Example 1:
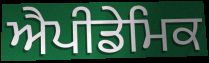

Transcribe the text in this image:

ਐਪੀਡੇਮਿਕ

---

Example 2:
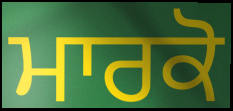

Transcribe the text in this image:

ਮਾਰਕੋ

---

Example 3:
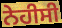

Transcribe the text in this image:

ਨੇਹੀਸੀ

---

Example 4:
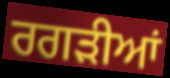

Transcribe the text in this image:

ਰਗੜੀਆਂ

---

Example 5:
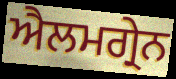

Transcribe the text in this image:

ਐਲਮਗ੍ਰੇਨ